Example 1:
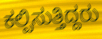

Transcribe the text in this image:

ಕಲ್ಪಿಸುತ್ತಿದ್ದರು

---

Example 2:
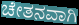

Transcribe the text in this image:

ಚೇತನವಾಗಿ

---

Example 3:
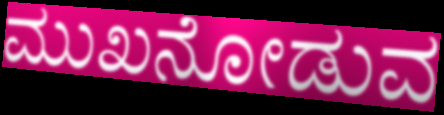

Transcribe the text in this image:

ಮುಖನೋಡುವ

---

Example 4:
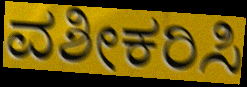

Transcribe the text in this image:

ವಶೀಕರಿಸಿ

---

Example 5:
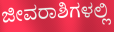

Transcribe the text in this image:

ಜೀವರಾಶಿಗಳಲ್ಲಿ